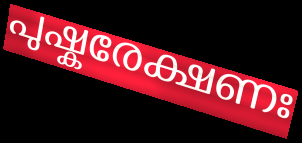
പുഷ്കരേക്ഷണഃ